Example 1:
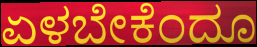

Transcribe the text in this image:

ಏಳಬೇಕೆಂದೂ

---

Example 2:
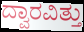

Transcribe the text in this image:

ದ್ವಾರವಿತ್ತು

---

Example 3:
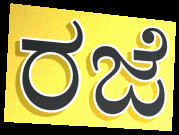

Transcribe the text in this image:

ರಜೆ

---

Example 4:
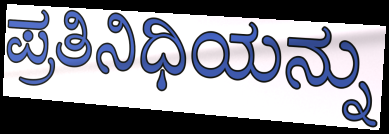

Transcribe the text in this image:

ಪ್ರತಿನಿಧಿಯನ್ನು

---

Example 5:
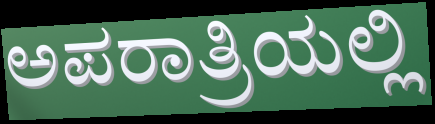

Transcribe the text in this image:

ಅಪರಾತ್ರಿಯಲ್ಲಿ